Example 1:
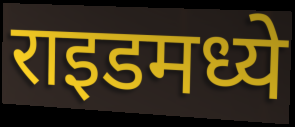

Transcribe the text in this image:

राइडमध्ये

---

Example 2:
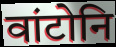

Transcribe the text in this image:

वांटोनि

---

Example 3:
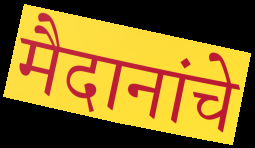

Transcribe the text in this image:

मैदानांचे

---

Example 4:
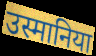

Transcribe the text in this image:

उस्मानिया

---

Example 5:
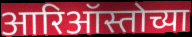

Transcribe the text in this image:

आरिऑस्तोच्या